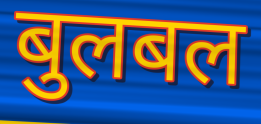
बुलबल